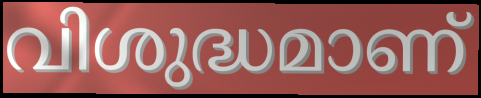
വിശുദ്ധമാണ്